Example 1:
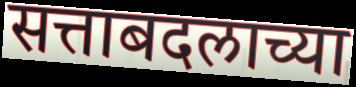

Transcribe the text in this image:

सत्ताबदलाच्या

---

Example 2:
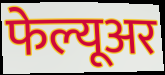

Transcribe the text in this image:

फेल्यूअर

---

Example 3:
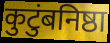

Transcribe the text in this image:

कुटुंबनिष्ठा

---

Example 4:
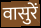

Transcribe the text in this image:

वासुरें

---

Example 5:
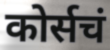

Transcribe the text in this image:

कोर्सचं